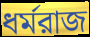
ধর্মরাজ